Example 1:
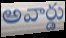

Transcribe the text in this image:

అవార్డు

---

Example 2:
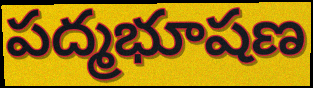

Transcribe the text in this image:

పద్మభూషణ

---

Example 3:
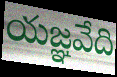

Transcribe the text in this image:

యజ్ఞవేది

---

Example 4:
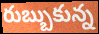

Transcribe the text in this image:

రుబ్బుకున్న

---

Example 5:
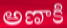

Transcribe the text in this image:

అణాకి